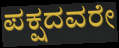
ಪಕ್ಷದವರೇ